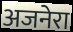
अजनेरा